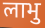
लाभु